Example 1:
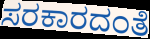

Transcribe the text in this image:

ಸರಕಾರದಂತೆ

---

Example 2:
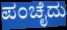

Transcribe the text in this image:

ಪಂಚೈದು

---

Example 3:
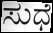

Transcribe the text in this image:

ಸುಧೆ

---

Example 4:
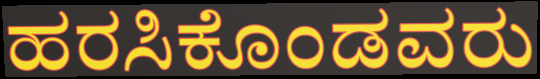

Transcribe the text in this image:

ಹರಸಿಕೊಂಡವರು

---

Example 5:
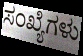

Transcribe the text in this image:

ಸಂಖ್ಯೆಗಳು